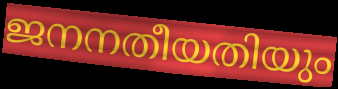
ജനനതീയതിയും